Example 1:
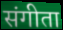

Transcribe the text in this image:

संगीता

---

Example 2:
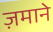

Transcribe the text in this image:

ज़माने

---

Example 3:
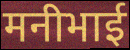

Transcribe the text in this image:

मनीभाई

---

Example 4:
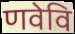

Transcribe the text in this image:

णवेवि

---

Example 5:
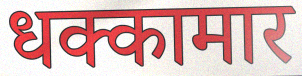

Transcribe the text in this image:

धक्कामार